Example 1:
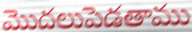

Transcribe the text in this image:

మొదలుపెడతాము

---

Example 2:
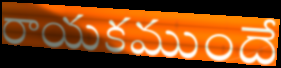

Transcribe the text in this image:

రాయకముందే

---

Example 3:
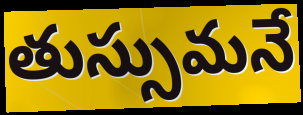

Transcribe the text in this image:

తుస్సుమనే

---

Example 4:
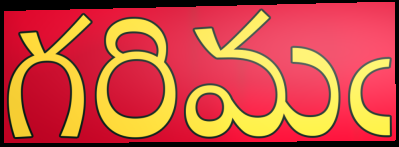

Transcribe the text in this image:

గరిమఁ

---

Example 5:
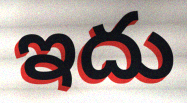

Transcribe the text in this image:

ఇదు